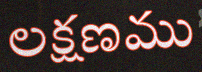
లక్షణము